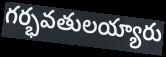
గర్భవతులయ్యారు